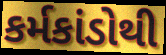
કર્મકાંડોથી